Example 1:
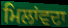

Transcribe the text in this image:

ਮਿਲਾਂਵਦਾ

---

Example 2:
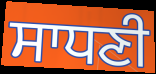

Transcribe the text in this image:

ਸਾਧਣੀ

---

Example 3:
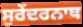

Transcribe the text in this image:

ਸੁਰੇਂਦਰਨਾਥ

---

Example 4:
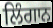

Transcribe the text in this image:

ਲਿੰਗਾਨ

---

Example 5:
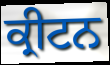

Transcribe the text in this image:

ਕ੍ਰੀਟਨ